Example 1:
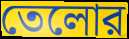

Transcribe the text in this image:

তেলোর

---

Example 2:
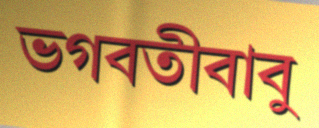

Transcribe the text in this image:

ভগবতীবাবু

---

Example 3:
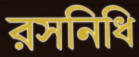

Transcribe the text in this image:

রসনিধি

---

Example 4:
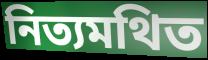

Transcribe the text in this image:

নিত্যমথিত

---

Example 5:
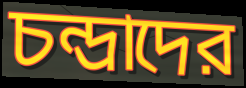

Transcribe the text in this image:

চন্দ্রাদের